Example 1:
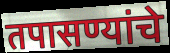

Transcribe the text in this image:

तपासण्यांचे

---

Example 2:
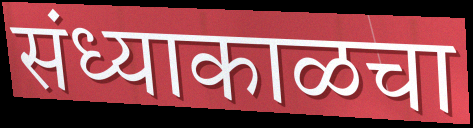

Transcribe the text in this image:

संध्याकाळचा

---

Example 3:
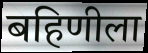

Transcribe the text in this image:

बहिणीला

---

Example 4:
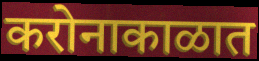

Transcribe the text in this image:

करोनाकाळात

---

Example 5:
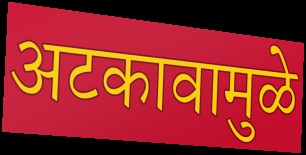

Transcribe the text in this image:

अटकावामुळे